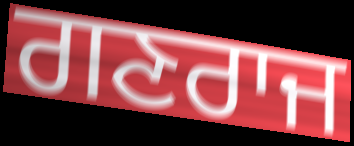
ਗਣਰਾਜ